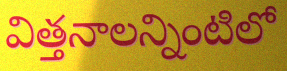
విత్తనాలన్నింటిలో